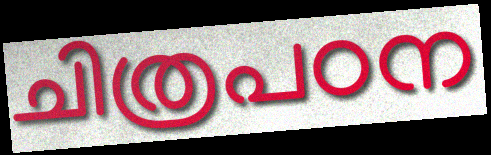
ചിത്രപഠന